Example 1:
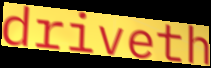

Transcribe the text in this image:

driveth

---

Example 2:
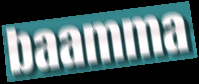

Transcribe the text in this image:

baamma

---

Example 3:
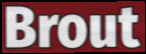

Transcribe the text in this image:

Brout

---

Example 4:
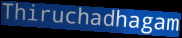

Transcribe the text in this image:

Thiruchadhagam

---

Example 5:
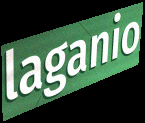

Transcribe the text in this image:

laganio